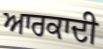
ਆਰਕਾਦੀ